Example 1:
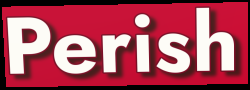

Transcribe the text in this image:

Perish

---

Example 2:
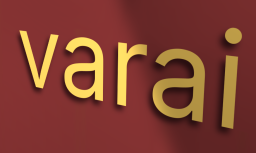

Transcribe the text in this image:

varai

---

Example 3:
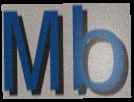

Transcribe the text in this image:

Mb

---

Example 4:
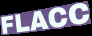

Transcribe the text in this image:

FLACC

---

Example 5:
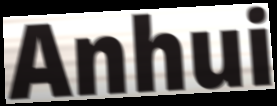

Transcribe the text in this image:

Anhui